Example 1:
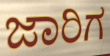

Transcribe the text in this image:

ಜಾರಿಗ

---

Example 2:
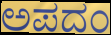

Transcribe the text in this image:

ಅಪದಂ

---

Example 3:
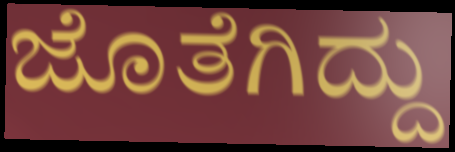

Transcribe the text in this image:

ಜೊತೆಗಿದ್ದು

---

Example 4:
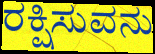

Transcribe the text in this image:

ರಕ್ಷಿಸುವನು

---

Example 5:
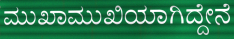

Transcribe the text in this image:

ಮುಖಾಮುಖಿಯಾಗಿದ್ದೇನೆ